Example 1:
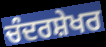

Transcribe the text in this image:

ਚੰਦਰਸ਼ੇਖਰ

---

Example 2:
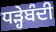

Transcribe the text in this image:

ਧੜ੍ਹੇਬੰਦੀ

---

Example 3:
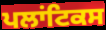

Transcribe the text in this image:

ਪਲਾਂਟਿਕਸ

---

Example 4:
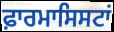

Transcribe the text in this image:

ਫ਼ਾਰਮਾਸਿਸਟਾਂ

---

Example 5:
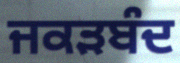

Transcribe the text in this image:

ਜਕੜਬੰਦ